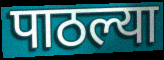
पाठल्या